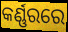
କର୍ଣ୍ଣରରେ